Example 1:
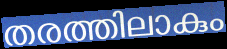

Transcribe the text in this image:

തരത്തിലാകും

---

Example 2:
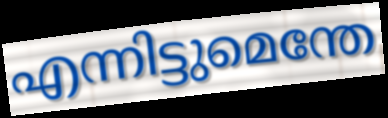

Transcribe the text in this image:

എന്നിട്ടുമെന്തേ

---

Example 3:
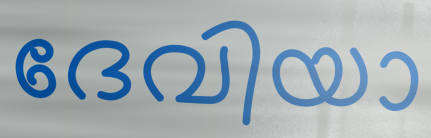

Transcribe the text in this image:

ദേവിയാ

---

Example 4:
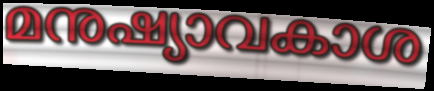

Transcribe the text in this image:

മനുഷ്യാവകാശ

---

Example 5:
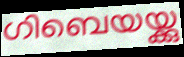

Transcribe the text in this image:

ഗിബെയയ്ക്കു